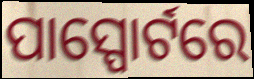
ପାସ୍ପୋର୍ଟରେ